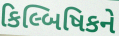
કિલ્બિષિકને